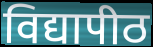
विद्यापीठ